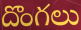
దొంగలు